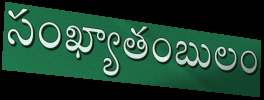
సంఖ్యాతంబులం